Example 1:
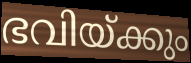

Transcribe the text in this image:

ഭവിയ്ക്കും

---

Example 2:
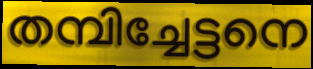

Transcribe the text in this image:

തമ്പിച്ചേട്ടനെ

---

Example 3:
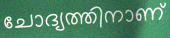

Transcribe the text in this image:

ചോദ്യത്തിനാണ്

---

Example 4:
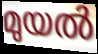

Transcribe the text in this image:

മുയൽ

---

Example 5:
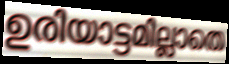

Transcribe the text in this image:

ഉരിയാട്ടമില്ലാതെ